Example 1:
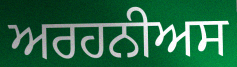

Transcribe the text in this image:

ਅਰਹਨੀਅਸ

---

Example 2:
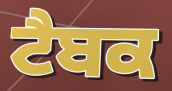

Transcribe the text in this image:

ਟੈਬਕ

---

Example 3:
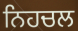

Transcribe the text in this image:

ਨਿਹਚਲ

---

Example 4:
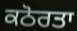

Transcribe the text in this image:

ਕਠੋਰਤਾ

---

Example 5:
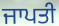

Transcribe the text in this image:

ਜਾਪਤੀ